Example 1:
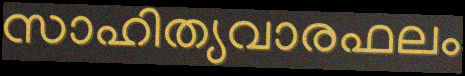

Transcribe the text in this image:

സാഹിത്യവാരഫലം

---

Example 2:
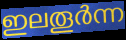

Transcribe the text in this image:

ഇലതൂർന്ന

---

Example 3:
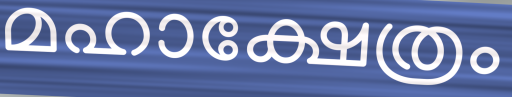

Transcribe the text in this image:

മഹാക്ഷേത്രം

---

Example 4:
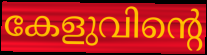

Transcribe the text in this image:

കേളുവിന്റെ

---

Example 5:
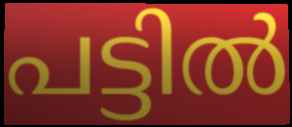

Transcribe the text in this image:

പട്ടിൽ